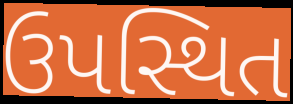
ઉપસ્થિત